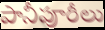
పానీపూరీలు